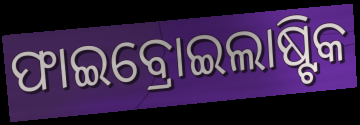
ଫାଇବ୍ରୋଇଲାଷ୍ଟିକ